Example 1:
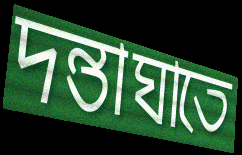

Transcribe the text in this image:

দন্তাঘাতে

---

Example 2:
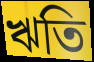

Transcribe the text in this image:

ঋতি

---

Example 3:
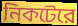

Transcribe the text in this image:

নিকটেরে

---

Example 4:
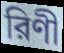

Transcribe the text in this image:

রিণী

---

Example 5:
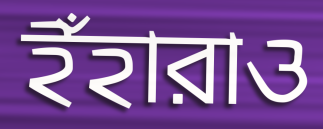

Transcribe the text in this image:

ইঁহারাও